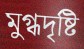
মুগ্ধদৃষ্টি